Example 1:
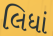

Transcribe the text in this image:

લિધાં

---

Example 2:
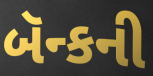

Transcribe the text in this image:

બૅન્કની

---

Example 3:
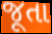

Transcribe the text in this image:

જૂતા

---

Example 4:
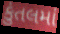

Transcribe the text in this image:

કુંતલમાં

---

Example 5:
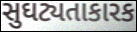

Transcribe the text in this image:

સુઘટ્યતાકારક